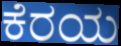
ಕೆರಯ